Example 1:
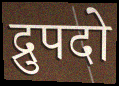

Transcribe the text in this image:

द्रुपदो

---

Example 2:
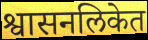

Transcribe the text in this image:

श्वासनलिकेत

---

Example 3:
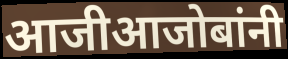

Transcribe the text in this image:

आजीआजोबांनी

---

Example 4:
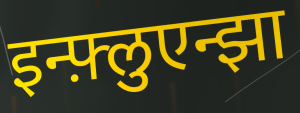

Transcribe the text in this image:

इन्फ़्लुएन्झा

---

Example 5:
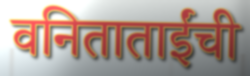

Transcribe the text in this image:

वनिताताईंची